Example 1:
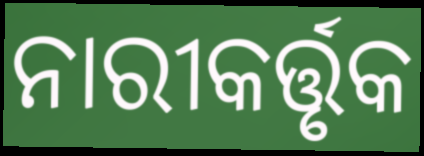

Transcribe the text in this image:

ନାରୀକର୍ତ୍ତୃକ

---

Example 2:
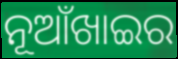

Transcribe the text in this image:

ନୂଆଁଖାଇର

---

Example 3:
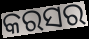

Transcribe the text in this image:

କରସର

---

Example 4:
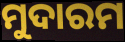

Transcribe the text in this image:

ମୁଦାରମ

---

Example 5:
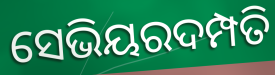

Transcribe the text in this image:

ସେଭିୟରଦମ୍ପତି